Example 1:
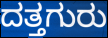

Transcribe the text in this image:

ದತ್ತಗುರು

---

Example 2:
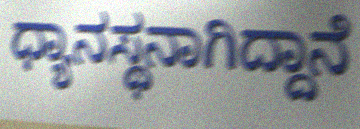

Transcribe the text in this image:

ಧ್ಯಾನಸ್ಥನಾಗಿದ್ದಾನೆ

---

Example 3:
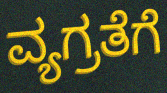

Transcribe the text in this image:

ವ್ಯಗ್ರತೆಗೆ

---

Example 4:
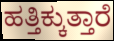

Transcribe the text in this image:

ಹತ್ತಿಕ್ಕುತ್ತಾರೆ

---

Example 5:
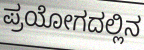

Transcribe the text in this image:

ಪ್ರಯೋಗದಲ್ಲಿನ